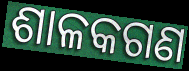
ଶାଳକଗଣ